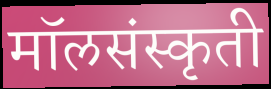
मॉलसंस्कृती